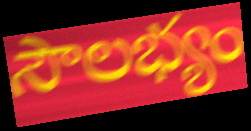
సౌలభ్యం